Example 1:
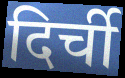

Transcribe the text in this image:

दिर्ची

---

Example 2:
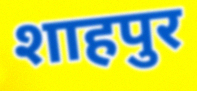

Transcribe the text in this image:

शाहपुर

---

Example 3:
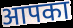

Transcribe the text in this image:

आपका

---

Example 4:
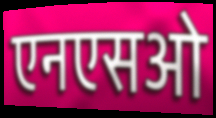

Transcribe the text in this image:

एनएसओ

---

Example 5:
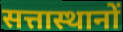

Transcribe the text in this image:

सत्तास्थानों